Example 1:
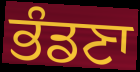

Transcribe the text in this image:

ਭੰਡਣਾ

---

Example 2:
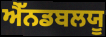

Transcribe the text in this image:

ਐੱਨਡਬਲਯੂ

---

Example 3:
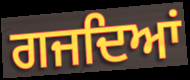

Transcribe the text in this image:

ਗਜਦਿਆਂ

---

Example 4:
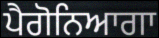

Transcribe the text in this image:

ਪੈਗੋਨਿਆਗਾ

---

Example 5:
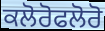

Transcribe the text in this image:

ਕਲੋਰੋਫਲੋਰੋ